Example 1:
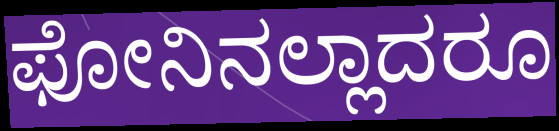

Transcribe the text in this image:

ಫೋನಿನಲ್ಲಾದರೂ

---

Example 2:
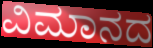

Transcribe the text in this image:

ವಿಮಾನದ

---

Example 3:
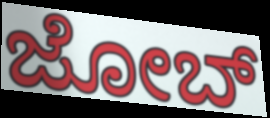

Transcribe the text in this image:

ಜೋಬ್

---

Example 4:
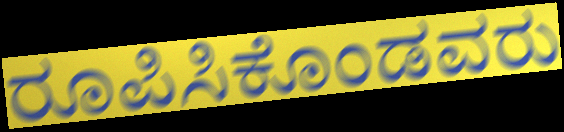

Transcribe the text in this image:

ರೂಪಿಸಿಕೊಂಡವರು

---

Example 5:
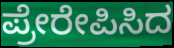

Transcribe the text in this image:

ಪ್ರೇರೇಪಿಸಿದ